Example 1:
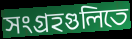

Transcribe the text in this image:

সংগ্রহগুলিতে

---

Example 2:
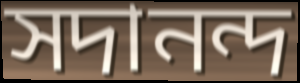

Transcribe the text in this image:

সদানন্দ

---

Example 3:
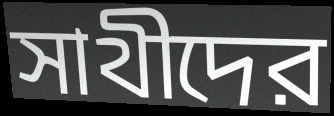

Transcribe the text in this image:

সাথীদের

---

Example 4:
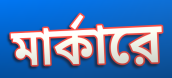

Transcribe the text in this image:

মার্কারে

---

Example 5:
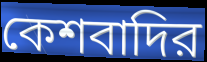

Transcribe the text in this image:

কেশবাদির